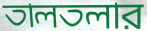
তালতলার